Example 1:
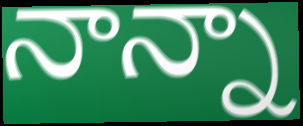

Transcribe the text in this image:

నాన్నా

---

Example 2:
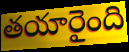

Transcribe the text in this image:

తయారైంది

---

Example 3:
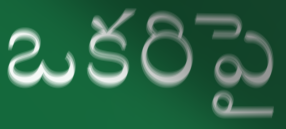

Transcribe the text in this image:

ఒకరిపై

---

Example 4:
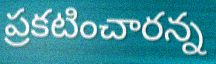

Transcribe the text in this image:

ప్రకటించారన్న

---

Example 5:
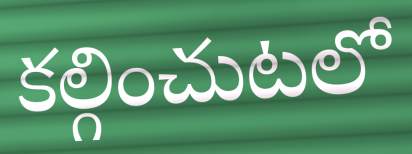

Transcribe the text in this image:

కల్గించుటలో